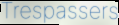
Trespassers